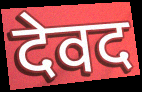
देवद